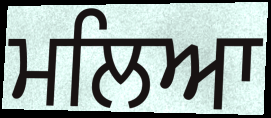
ਮਲਿਆ